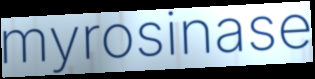
myrosinase